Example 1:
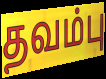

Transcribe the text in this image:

தவம்பு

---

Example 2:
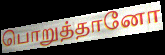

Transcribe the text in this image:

பொறுத்தானோ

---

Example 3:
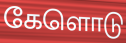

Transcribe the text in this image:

கேளொடு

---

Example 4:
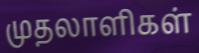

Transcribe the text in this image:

முதலாளிகள்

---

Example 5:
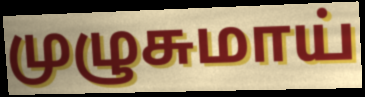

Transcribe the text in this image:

முழுசுமாய்